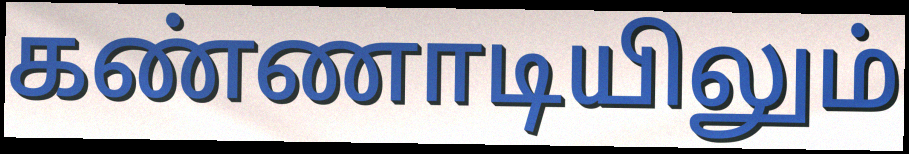
கண்ணாடியிலும்